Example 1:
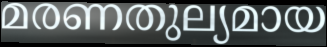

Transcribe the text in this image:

മരണതുല്യമായ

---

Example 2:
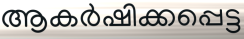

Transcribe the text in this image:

ആകർഷിക്കപ്പെട്ട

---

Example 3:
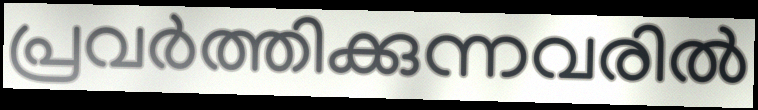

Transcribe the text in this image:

പ്രവർത്തിക്കുന്നവരിൽ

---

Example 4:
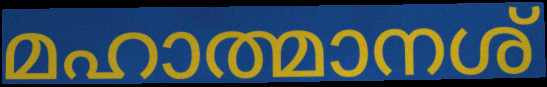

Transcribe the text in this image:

മഹാത്മാനശ്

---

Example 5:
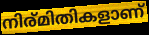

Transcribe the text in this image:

നിര്മിതികളാണ്